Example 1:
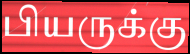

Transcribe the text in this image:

பியருக்கு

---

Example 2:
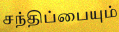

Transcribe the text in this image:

சந்திப்பையும்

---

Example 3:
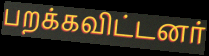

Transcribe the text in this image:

பறக்கவிட்டனர்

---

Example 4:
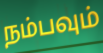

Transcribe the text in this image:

நம்பவும்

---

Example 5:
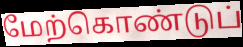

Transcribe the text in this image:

மேற்கொண்டுப்